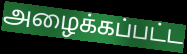
அழைக்கப்பட்ட